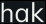
hak